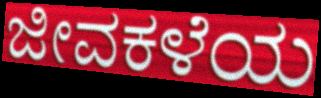
ಜೀವಕಳೆಯ